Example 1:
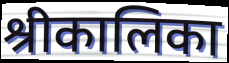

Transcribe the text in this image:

श्रीकालिका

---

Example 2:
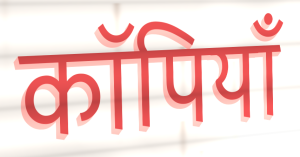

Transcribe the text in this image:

कॉपियाँ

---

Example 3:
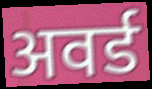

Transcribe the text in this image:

अवर्ड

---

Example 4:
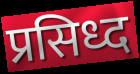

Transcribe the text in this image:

प्रसिध्द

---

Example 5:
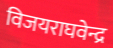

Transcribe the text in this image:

विजयराघवेन्द्र